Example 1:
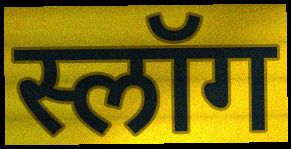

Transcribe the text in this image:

स्लॉग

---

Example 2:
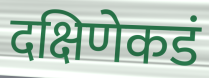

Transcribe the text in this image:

दक्षिणेकडं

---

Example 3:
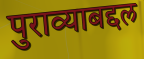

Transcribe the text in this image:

पुराव्याबद्दल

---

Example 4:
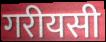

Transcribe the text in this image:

गरीयसी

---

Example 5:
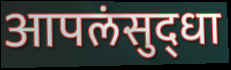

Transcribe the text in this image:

आपलंसुद्धा